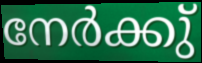
നേർക്കു്